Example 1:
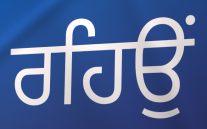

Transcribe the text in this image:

ਰਹਿਉਂ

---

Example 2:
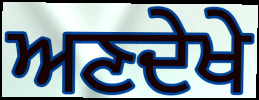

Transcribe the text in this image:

ਅਣਦੇਖੇ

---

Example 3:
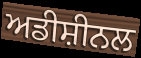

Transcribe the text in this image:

ਅਡੀਸ਼ੀਨਲ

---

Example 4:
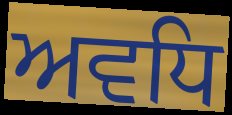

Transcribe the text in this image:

ਅਵਧਿ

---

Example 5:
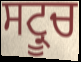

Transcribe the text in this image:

ਸਟ੍ਰੂਚ